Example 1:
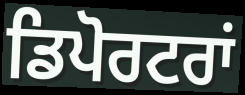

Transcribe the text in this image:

ਡਿਪੋਰਟਰਾਂ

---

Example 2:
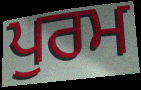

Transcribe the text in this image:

ਪੁਰਮ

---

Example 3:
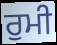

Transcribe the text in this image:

ਰੁਮੀ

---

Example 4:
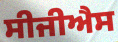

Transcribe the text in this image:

ਸੀਜੀਐਸ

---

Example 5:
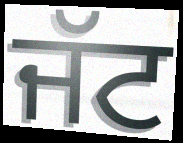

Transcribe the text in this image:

ਜੱਟ